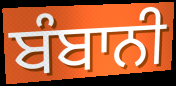
ਬੰਬਾਨੀ